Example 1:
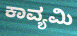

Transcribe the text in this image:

ಕಾವ್ಯಮಿ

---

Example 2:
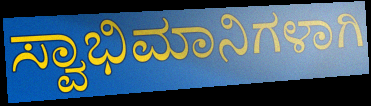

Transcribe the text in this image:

ಸ್ವಾಭಿಮಾನಿಗಳಾಗಿ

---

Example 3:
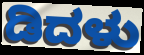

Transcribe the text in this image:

ಡಿದಳು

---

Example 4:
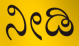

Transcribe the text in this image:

ನೀಡಿ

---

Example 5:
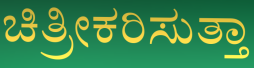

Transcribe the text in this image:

ಚಿತ್ರೀಕರಿಸುತ್ತಾ